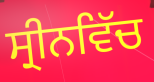
ਸ੍ਰੀਨਵਿੱਚ